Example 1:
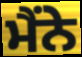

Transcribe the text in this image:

ਮੈਂਨੇ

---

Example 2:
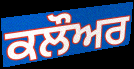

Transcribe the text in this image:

ਕਲੌਅਰ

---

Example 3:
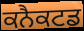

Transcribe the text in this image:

ਕਨੈਕਟਡ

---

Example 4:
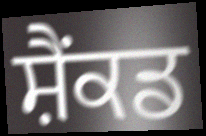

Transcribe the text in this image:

ਸ਼ੈਂਕਡ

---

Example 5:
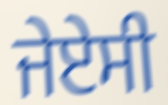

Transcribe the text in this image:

ਜੇਏਸੀ